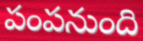
పంపనుంది